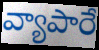
వ్యాపారే